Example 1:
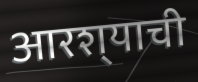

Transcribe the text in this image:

आरश्याची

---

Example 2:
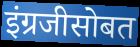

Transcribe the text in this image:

इंग्रजीसोबत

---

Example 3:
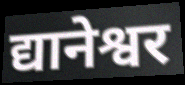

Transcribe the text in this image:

द्यानेश्वर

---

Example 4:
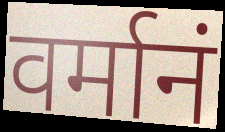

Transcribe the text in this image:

वर्मानं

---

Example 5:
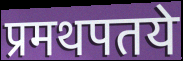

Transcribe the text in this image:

प्रमथपतये